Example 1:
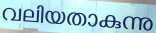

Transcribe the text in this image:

വലിയതാകുന്നു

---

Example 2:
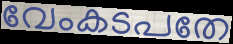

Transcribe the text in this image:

വേംകടപതേ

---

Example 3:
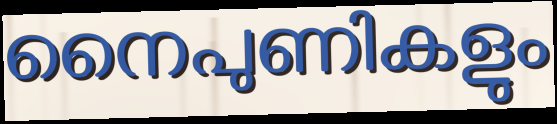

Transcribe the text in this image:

നൈപുണികളും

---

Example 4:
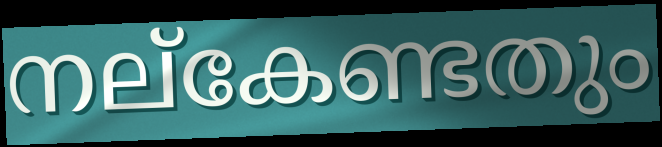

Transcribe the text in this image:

നല്കേണ്ടതും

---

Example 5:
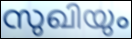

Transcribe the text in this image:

സുഖിയും